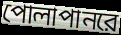
পোলাপানরে